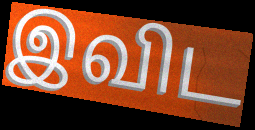
இவிட